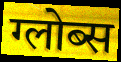
ग्लोब्स